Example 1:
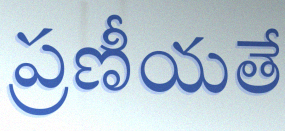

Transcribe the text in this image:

ప్రణీయతే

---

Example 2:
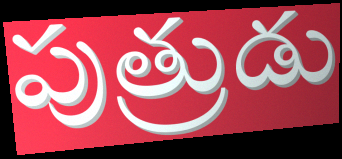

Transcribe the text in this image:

పుత్రుడు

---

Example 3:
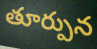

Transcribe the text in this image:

తూర్పున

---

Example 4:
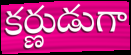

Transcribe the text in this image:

కర్ణుడుగా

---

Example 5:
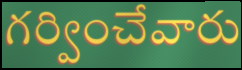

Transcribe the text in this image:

గర్వించేవారు